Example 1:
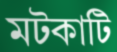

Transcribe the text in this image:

মটকাটি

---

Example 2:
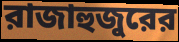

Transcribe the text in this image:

রাজাহুজুরের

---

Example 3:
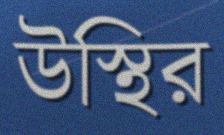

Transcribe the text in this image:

উস্থির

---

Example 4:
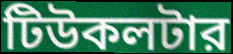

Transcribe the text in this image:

টিউকলটার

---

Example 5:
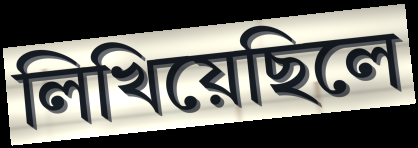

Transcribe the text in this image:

লিখিয়েছিলে